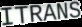
ITRANS